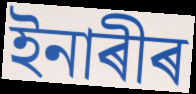
ইনাৰীৰ